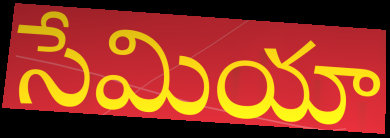
సేమియా